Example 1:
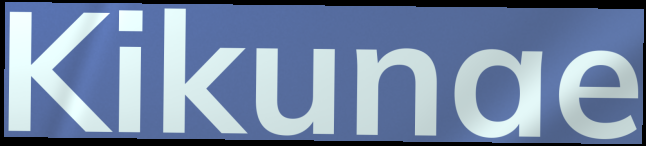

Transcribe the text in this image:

Kikunae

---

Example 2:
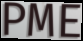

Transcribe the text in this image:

PME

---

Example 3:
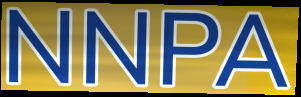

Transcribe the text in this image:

NNPA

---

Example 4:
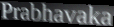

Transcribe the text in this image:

Prabhavaka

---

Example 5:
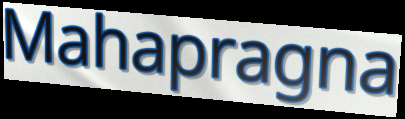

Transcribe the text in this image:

Mahapragna